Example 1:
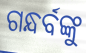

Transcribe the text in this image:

ଗନ୍ଧର୍ବଙ୍କୁ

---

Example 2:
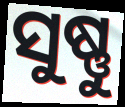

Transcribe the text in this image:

ସୁଷ୍ଣୁ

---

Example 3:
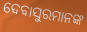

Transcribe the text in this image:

ଦେବାସୁରମାନଙ୍କ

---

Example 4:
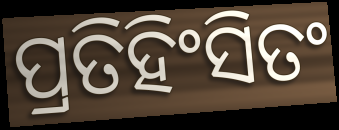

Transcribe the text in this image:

ପ୍ରତିହିଂସିତଂ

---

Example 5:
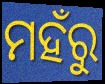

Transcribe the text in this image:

ମହଁରୁ